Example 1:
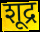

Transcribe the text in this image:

शूद्र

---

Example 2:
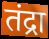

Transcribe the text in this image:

तंद्रा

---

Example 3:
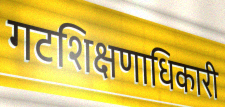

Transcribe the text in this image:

गटशिक्षणाधिकारी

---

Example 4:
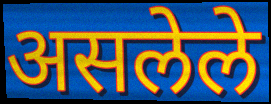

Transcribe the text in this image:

असलेले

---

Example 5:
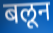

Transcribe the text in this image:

बलून